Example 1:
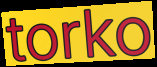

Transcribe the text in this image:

torko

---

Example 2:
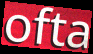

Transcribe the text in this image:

ofta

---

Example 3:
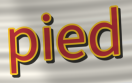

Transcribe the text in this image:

pied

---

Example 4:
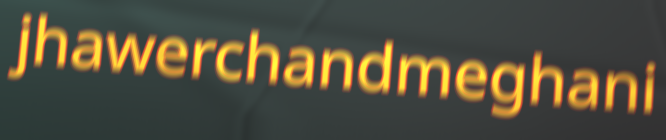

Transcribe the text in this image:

jhawerchandmeghani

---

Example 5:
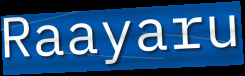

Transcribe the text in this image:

Raayaru